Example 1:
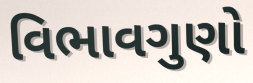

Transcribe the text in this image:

વિભાવગુણો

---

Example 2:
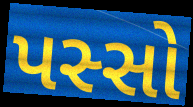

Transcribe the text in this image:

પસ્સો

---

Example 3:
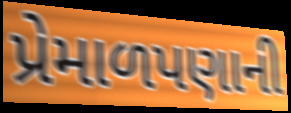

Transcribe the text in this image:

પ્રેમાળપણાની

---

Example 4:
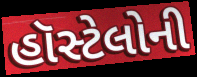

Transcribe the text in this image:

હૉસ્ટેલોની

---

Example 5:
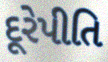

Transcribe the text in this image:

દૂરેપીતિ